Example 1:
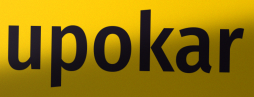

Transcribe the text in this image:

upokar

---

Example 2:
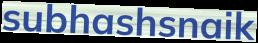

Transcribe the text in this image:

subhashsnaik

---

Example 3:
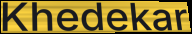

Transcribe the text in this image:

Khedekar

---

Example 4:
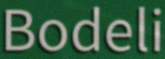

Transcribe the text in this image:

Bodeli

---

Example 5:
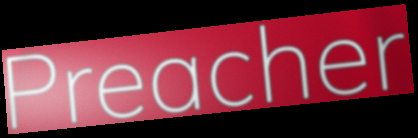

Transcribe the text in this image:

Preacher